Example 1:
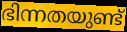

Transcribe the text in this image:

ഭിന്നതയുണ്ട്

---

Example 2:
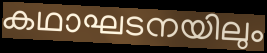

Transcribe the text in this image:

കഥാഘടനയിലും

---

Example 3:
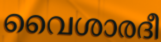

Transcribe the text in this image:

വൈശാരദീ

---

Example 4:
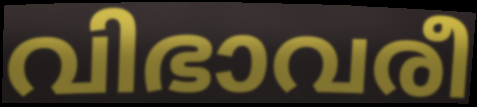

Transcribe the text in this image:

വിഭാവരീ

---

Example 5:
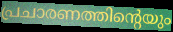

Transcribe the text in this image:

പ്രചാരണത്തിന്റെയും